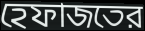
হেফাজতের